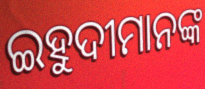
ଇହୁଦୀମାନଙ୍କ